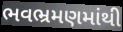
ભવભ્રમણમાંથી